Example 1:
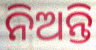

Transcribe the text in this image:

ନିଅନ୍ତି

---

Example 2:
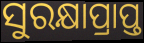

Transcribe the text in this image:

ସୁରକ୍ଷାପ୍ରାପ୍ତ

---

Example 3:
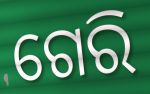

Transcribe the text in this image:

ଗେରି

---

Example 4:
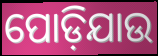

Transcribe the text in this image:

ପୋଡ଼ିଯାଉ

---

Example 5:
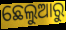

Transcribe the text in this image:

ଛେଲୁଆରୁ